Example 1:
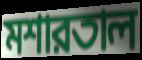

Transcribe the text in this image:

মশারতাল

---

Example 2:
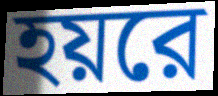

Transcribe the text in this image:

হয়রে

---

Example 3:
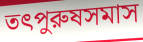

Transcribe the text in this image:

তৎপুরুষসমাস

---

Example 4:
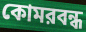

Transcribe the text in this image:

কোমরবন্ধ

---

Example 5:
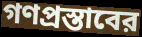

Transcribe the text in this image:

গণপ্রস্তাবের